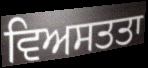
ਵਿਅਸਤਤਾ